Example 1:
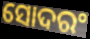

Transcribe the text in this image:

ସୋଦରଂ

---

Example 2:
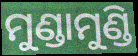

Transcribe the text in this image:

ମୁଣ୍ଡାମୁଣ୍ଡି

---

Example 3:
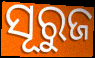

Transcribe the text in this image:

ସୂରୁଜ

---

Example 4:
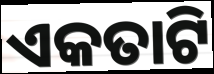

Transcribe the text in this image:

ଏକତାଟି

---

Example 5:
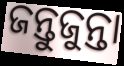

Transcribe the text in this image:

ଜନ୍ତୁଜୁନ୍ତା